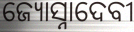
ଜ୍ୟୋସ୍ନାଦେବୀ